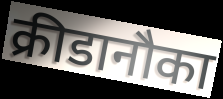
क्रीडानौका